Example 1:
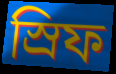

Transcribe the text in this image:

স্রিফ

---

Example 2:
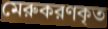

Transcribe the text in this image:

মেরুকরণকৃত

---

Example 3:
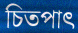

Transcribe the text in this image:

চিতপাৎ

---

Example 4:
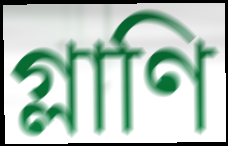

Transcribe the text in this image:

গ্লাণি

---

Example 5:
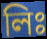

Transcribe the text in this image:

লিঃ